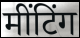
मींटिंग